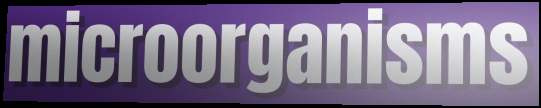
microorganisms